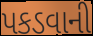
પકડવાની